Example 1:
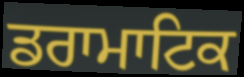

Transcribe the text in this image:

ਡਰਾਮਾਟਿਕ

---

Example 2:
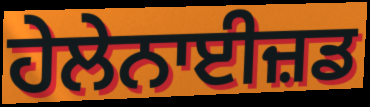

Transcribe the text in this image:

ਹੇਲੇਨਾਈਜ਼ਡ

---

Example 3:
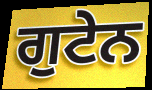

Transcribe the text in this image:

ਗੁਟੇਨ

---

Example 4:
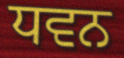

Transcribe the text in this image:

ਧਵਨ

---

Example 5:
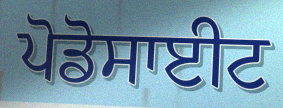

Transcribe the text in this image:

ਪੋਡੋਸਾਈਟ